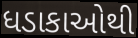
ધડાકાઓથી